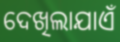
ଦେଖିଲାଯାଏଁ